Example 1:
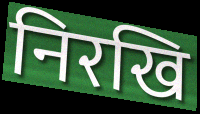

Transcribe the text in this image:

निरखि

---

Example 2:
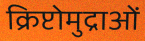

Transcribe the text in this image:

क्रिप्टोमुद्राओं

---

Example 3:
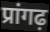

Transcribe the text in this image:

प्रांगढ़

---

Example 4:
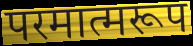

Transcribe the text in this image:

परमात्मरूप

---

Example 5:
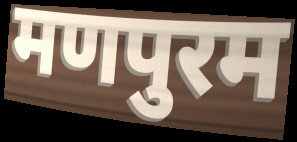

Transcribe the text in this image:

मणपुरम